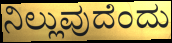
ನಿಲ್ಲುವುದೆಂದು